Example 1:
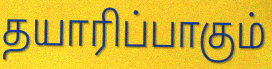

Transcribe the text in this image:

தயாரிப்பாகும்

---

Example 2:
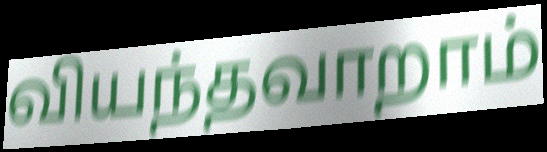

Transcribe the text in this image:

வியந்தவாறாம்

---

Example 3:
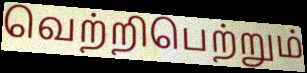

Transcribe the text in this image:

வெற்றிபெற்றும்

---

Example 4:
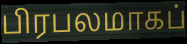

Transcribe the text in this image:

பிரபலமாகப்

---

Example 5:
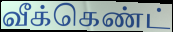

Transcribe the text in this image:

வீக்கெண்ட்